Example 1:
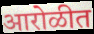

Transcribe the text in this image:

आरोळीत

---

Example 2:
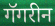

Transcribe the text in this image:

गॅगरीन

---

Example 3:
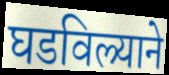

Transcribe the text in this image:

घडविल्याने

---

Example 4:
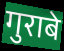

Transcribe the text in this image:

गुराबे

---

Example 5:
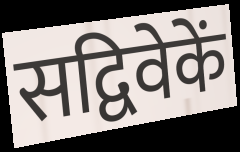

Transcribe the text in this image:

सद्विवेकें